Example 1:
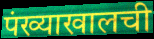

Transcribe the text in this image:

पंख्याखालची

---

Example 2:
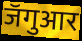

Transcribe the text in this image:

जॅगुआर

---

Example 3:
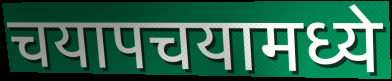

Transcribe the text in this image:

चयापचयामध्ये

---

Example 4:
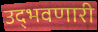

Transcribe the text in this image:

उद्भवणारी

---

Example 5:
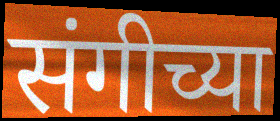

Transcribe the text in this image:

संगीच्या